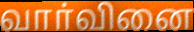
வார்வினை